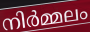
നിർമ്മലം